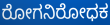
ರೋಗನಿರೋಧಕ